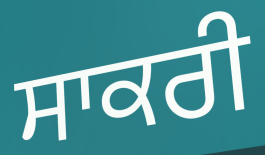
ਸਾਕਰੀ